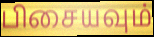
பிசையவும்